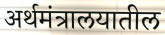
अर्थमंत्रालयातील